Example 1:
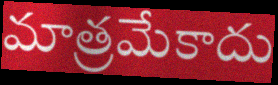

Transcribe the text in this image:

మాత్రమేకాదు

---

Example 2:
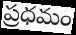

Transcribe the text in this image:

ప్రధమం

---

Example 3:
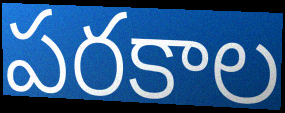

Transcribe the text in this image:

పరకాల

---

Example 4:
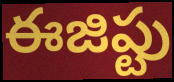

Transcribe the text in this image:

ఈజిప్టు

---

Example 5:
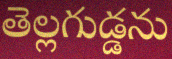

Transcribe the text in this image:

తెల్లగుడ్డను